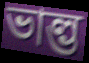
ভাল্ভ